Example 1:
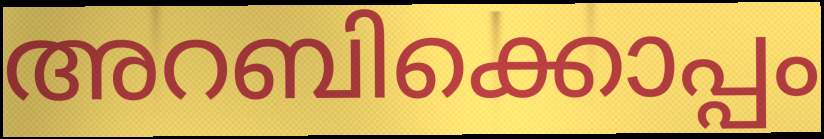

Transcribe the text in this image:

അറബിക്കൊപ്പം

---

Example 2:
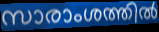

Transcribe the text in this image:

സാരാംശത്തിൽ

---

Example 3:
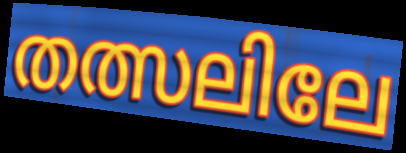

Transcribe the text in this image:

തത്സലിലേ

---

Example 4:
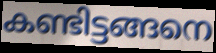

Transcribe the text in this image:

കണ്ടിട്ടങ്ങനെ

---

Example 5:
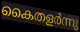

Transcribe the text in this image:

കൈതളർന്നു